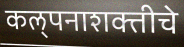
कल्पनाशक्तीचे